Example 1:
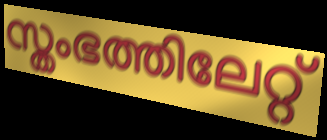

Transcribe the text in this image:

സ്തംഭത്തിലേറ്റ്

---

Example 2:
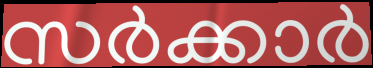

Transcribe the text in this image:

സർക്കാർ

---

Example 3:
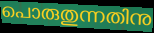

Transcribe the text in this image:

പൊരുതുന്നതിനു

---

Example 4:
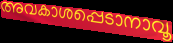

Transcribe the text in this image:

അവകാശപ്പെടാനാവൂ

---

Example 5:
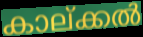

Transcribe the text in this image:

കാല്ക്കൽ